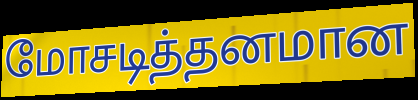
மோசடித்தனமான